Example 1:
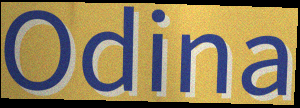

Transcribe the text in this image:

Odina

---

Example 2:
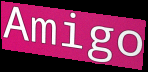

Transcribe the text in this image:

Amigo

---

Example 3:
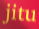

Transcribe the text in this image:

jitu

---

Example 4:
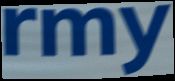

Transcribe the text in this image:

rmy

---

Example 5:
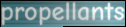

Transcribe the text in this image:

propellants